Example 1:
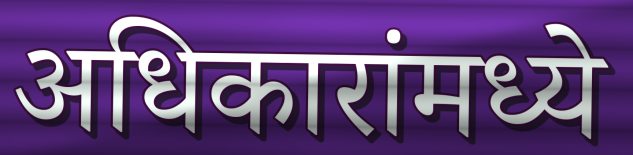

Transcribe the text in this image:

अधिकारांमध्ये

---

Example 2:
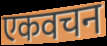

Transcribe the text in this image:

एकवचन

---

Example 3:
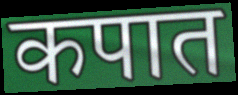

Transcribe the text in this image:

कपात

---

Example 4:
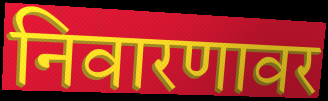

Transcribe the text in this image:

निवारणावर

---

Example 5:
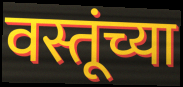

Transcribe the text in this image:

वस्तूंच्या